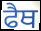
ਫੈਥ